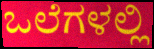
ಒಲೆಗಳಲ್ಲಿ